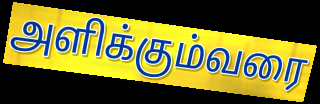
அளிக்கும்வரை